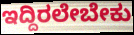
ಇದ್ದಿರಲೇಬೇಕು